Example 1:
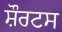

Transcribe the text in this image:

ਸ਼ੌਰਟਸ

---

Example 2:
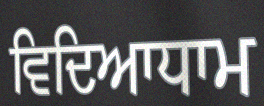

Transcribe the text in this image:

ਵਿਦਿਆਧਾਮ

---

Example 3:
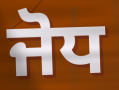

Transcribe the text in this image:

ਜੋਧ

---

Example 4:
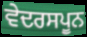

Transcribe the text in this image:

ਵੇਦਰਸਪੂਨ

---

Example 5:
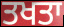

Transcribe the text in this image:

ਤਖਤਾ